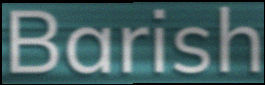
Barish